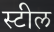
स्टील